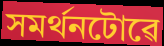
সমৰ্থনটোৱে